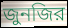
জুনজির